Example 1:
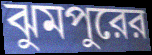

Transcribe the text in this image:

ঝুমপুরের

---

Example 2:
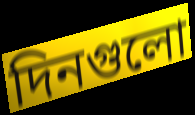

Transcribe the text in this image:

দিনগুলো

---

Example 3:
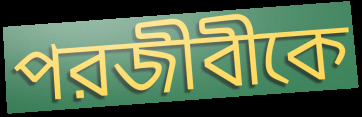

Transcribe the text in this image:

পরজীবীকে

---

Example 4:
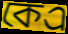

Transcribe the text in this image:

কেএ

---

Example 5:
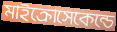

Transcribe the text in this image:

মাইক্রোসেকেন্ডে